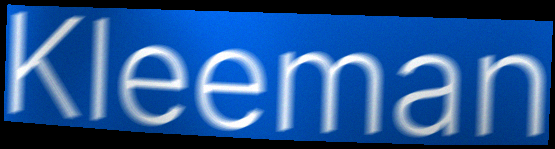
Kleeman